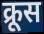
क्रूस